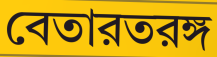
বেতারতরঙ্গ